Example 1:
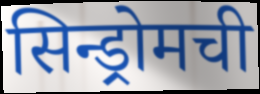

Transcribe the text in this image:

सिन्ड्रोमची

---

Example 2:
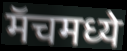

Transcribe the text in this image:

मॅचमध्ये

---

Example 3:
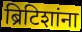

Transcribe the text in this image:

ब्रिटिशांना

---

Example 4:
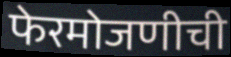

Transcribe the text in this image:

फेरमोजणीची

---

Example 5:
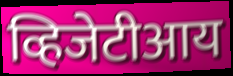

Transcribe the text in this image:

व्हिजेटीआय